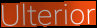
Ulterior